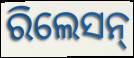
ରିଲେସନ୍